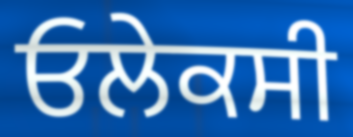
ਓਲੇਕਸੀ